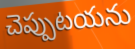
చెప్పుటయను